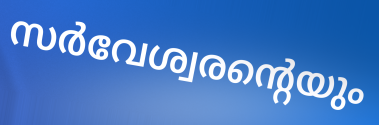
സർവേശ്വരന്റെയും